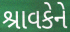
શ્રાવકેને